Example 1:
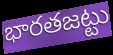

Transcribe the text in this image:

భారతజట్టు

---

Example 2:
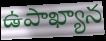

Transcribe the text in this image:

ఉపాఖ్యాన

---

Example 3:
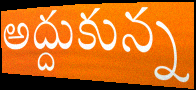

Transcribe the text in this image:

అద్దుకున్న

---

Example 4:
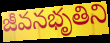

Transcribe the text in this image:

జీవనభృతిని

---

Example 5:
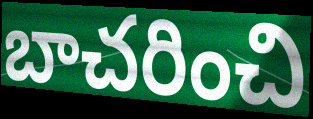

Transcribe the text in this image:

బాచరించి